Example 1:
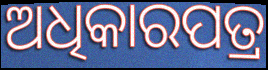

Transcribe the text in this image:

ଅଧିକାରପତ୍ର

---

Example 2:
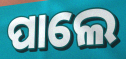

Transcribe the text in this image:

ପାଲେ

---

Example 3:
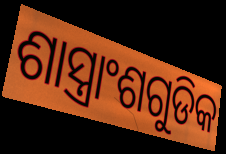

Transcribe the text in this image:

ଶାସ୍ତ୍ରାଂଶଗୁଡିକ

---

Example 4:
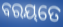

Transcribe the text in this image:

ବରୟତେ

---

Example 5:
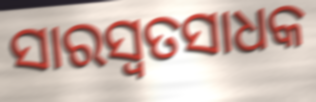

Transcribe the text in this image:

ସାରସ୍ଵତସାଧକ